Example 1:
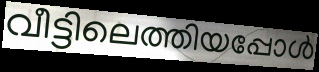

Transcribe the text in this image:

വീട്ടിലെത്തിയപ്പോൾ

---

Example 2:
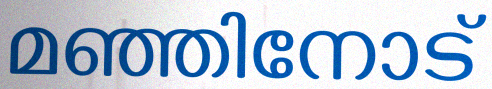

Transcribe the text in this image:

മഞ്ഞിനോട്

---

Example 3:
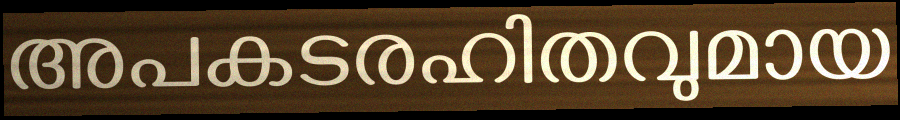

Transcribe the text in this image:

അപകടരഹിതവുമായ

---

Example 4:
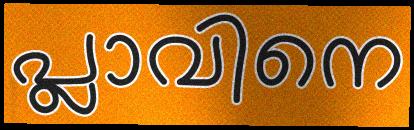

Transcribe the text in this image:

പ്ലാവിനെ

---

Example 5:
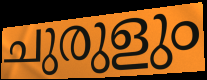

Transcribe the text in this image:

ചുരുളും